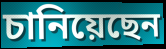
চানিয়েছেন